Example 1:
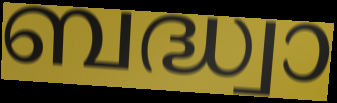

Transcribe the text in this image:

ബദ്ധ്വാ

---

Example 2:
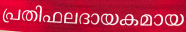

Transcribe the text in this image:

പ്രതിഫലദായകമായ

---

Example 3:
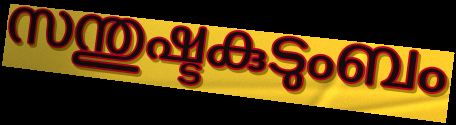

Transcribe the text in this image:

സന്തുഷ്ടകുടുംബം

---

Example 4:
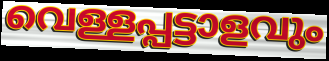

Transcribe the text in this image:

വെള്ളപ്പട്ടാളവും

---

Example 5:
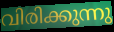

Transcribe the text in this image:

വിരിക്കുന്നു